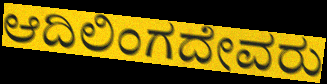
ಆದಿಲಿಂಗದೇವರು